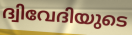
ദ്വിവേദിയുടെ